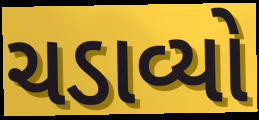
ચડાવ્યો